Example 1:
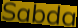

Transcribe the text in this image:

Sabda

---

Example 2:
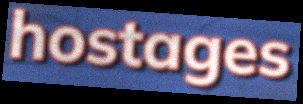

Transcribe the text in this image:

hostages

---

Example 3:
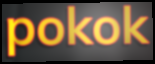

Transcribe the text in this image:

pokok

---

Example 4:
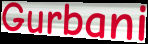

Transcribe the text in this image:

Gurbani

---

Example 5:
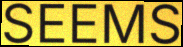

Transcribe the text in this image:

SEEMS